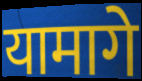
यामागे